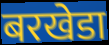
बरखेडा